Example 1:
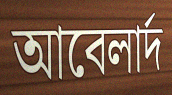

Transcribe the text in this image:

আবেলার্দ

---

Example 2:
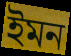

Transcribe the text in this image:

ইমন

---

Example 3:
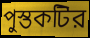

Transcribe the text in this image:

পুস্তকটির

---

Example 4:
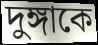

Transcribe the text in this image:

দুঙ্গাকে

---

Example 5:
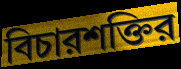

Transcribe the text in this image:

বিচারশক্তির